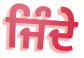
ਜਿੰਦੇ